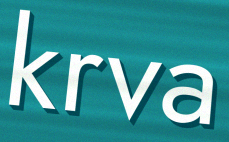
krva